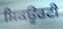
ਸਿਕਊਰਟੀ